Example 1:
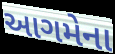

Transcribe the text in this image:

આગમેના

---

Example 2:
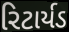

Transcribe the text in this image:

રિટાર્યડ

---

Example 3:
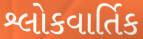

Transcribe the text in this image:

શ્લોકવાર્તિક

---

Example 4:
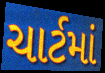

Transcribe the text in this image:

ચાર્ટમાં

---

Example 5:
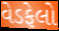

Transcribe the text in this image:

વેડફેલો